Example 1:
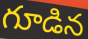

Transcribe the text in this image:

గూడిన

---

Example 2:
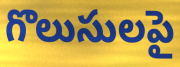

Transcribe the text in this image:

గొలుసులపై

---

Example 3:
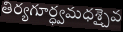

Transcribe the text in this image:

తిర్యగూర్ధ్వమధశ్చైవ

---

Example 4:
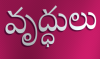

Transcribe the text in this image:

వృద్ధులు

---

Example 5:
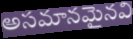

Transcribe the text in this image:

అసమానమైనవి